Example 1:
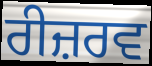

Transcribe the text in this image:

ਰੀਜ਼ਰਵ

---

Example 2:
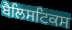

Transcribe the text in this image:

ਬੈਲਿਸਟਿਕਸ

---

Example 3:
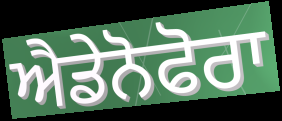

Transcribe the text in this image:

ਐਡੇਨੋਫੋਰਾ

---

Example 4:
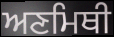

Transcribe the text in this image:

ਅਣਮਿਥੀ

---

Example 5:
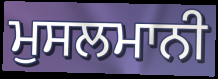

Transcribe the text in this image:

ਮੁਸਲਮਾਨੀ